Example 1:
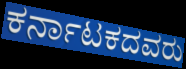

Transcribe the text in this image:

ಕರ್ನಾಟಕದವರು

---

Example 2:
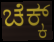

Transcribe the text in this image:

ಚೆಕ್ಕ್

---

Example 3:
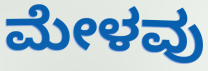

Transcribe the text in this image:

ಮೇಳವು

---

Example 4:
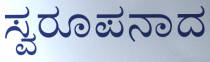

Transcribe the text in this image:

ಸ್ವರೂಪನಾದ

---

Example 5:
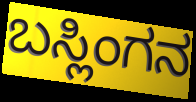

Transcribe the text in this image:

ಬಸ್ಲಿಂಗನ